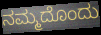
ನಮ್ಮದೊಂದು